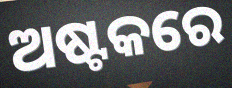
ଅଷ୍ଟକରେ